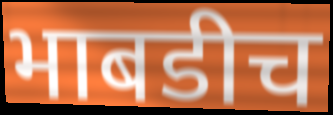
भाबडीच